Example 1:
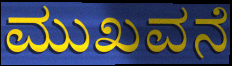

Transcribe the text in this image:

ಮುಖವನೆ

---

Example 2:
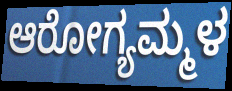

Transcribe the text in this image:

ಆರೋಗ್ಯಮ್ಮಳ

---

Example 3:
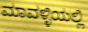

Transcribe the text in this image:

ಮಾವಳ್ಳಿಯಲ್ಲಿ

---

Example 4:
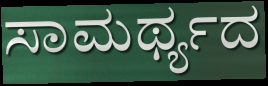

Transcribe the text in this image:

ಸಾಮರ್ಥ್ಯದ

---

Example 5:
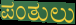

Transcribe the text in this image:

ಪಂತುಲು